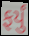
ફર્યું